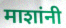
माशांनी